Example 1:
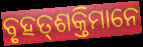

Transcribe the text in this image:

ବୃହତ୍‌ଶକ୍ତିମାନେ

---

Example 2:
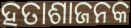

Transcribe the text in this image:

ହତାଶାଜନକ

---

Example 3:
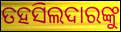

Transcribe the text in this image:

ତହସିଲଦାରଙ୍କୁ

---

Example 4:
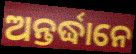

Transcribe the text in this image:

ଅନ୍ତର୍ଦ୍ଧାନେ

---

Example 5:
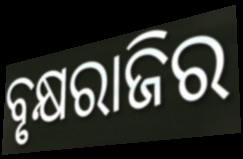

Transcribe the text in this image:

ବୃକ୍ଷରାଜିର